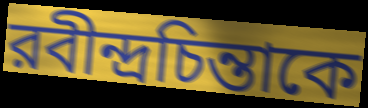
রবীন্দ্রচিন্তাকে